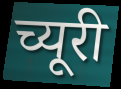
च्यूरी